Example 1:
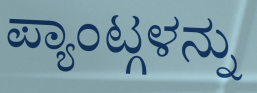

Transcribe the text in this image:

ಪ್ಯಾಂಟ್ಗಳನ್ನು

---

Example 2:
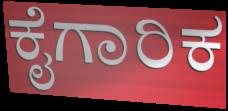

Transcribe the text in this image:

ಕೈಗಾರಿಕ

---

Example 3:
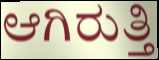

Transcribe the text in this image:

ಆಗಿರುತ್ತಿ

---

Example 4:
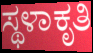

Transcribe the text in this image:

ಸ್ಥಳಾಕೃತಿ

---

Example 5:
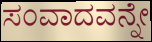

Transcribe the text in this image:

ಸಂವಾದವನ್ನೇ